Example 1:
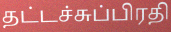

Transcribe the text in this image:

தட்டச்சுப்பிரதி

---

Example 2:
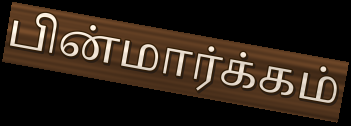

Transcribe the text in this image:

பின்மார்க்கம்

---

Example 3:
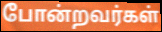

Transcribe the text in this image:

போன்றவர்கள்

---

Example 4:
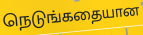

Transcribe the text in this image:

நெடுங்கதையான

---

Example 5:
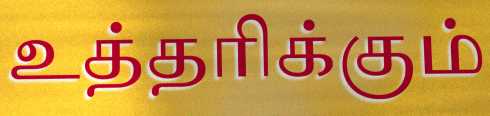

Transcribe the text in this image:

உத்தரிக்கும்